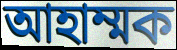
আহাম্মক